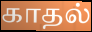
காதல்